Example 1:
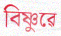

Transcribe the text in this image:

বিষ্ণুৱে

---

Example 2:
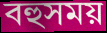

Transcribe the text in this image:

বহুসময়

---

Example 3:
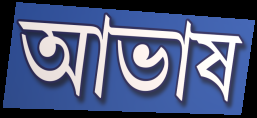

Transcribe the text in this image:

আভাষ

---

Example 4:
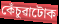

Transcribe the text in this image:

কেঁচুৱাটোক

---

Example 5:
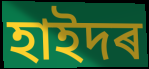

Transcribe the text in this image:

হাইদৰ